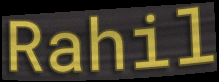
Rahil